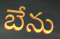
బేను